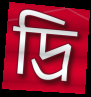
দ্রি